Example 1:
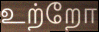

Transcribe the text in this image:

உற்றோ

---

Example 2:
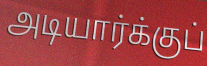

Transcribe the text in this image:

அடியார்க்குப்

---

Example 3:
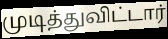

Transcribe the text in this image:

முடித்துவிட்டார்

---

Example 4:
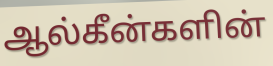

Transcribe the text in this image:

ஆல்கீன்களின்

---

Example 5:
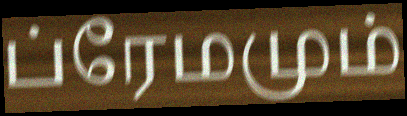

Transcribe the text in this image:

ப்ரேமமும்